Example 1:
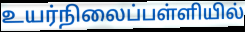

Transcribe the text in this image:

உயர்நிலைப்பள்ளியில்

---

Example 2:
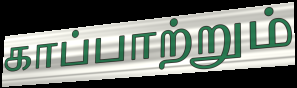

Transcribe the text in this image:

காப்பாற்றும்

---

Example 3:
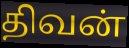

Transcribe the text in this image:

திவன்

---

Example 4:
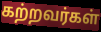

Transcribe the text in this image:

கற்றவர்கள்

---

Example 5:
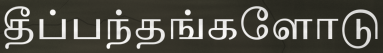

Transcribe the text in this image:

தீப்பந்தங்களோடு